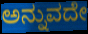
ಅನ್ನುವದೇ